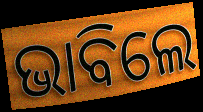
ଭାବିଲେ